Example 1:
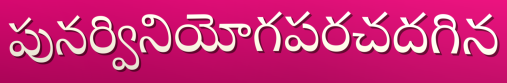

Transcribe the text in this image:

పునర్వినియోగపరచదగిన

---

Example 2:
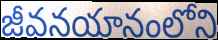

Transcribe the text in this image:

జీవనయానంలోని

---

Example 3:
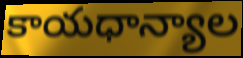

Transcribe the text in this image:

కాయధాన్యాల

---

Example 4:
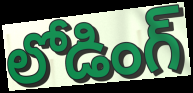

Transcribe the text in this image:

లోడింగ్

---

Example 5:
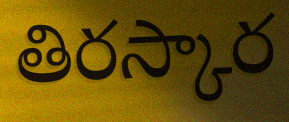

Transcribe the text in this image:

తిరస్కార